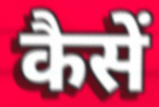
कैसें